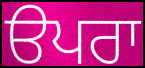
ੳਪਰਾ